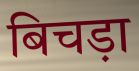
बिचड़ा